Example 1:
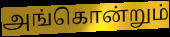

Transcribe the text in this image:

அங்கொன்றும்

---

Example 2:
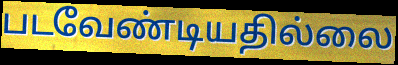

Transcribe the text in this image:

படவேண்டியதில்லை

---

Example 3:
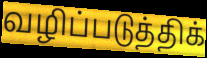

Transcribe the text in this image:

வழிப்படுத்திக்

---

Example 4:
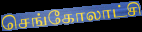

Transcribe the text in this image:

செங்கோலாட்சி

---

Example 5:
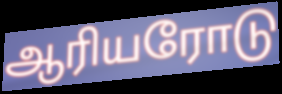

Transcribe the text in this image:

ஆரியரோடு